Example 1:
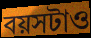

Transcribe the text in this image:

বয়সটাও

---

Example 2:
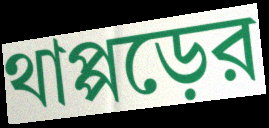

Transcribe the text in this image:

থাপ্পড়ের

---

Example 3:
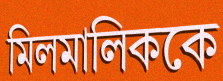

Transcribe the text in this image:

মিলমালিককে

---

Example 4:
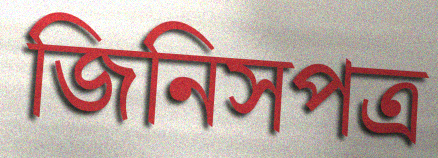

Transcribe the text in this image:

জিনিসপত্র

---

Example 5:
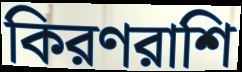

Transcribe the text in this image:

কিরণরাশি